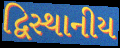
દ્વિસ્થાનીય